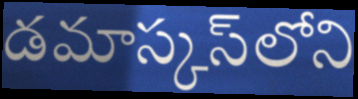
డమాస్కస్‌లోని